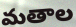
మతాల